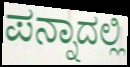
ಪನ್ನಾದಲ್ಲಿ